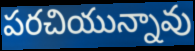
పరచియున్నావు